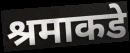
श्रमाकडे